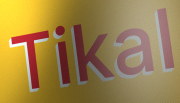
Tikal